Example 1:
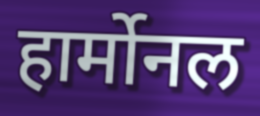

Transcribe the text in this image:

हार्मोनल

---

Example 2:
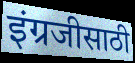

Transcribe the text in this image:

इंग्रजीसाठी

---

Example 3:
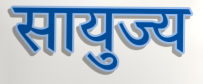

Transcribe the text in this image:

सायुज्य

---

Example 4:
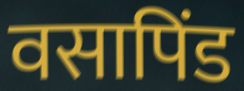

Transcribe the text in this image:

वसापिंड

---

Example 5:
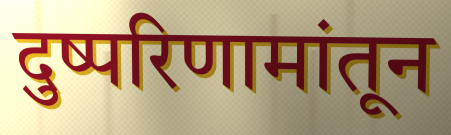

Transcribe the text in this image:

दुष्परिणामांतून